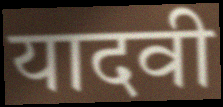
यादवी